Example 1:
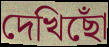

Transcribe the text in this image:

দেখিছোঁ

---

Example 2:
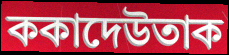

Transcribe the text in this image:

ককাদেউতাক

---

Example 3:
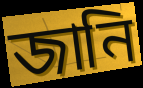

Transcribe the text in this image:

জানি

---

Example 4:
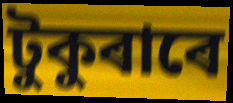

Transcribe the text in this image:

টুকুৰাৰে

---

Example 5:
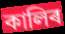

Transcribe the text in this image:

কালিৰ